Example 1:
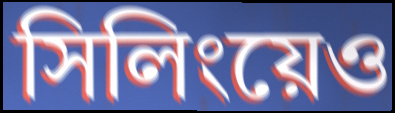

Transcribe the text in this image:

সিলিংয়েও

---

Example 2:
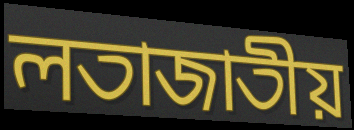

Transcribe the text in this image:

লতাজাতীয়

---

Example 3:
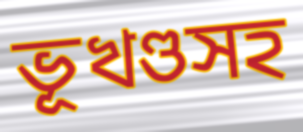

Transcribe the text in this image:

ভূখণ্ডসহ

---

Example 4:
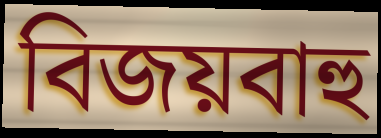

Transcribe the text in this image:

বিজয়বাহু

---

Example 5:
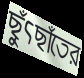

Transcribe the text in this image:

ছুঁৎছাঁতের